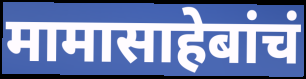
मामासाहेबांचं